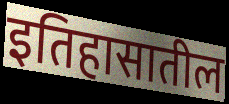
इतिहासातील